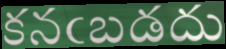
కనఁబడదు